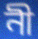
নী